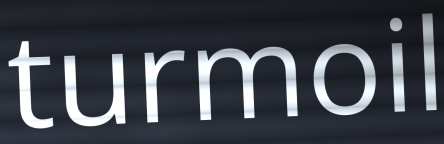
turmoil